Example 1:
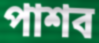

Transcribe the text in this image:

পাশব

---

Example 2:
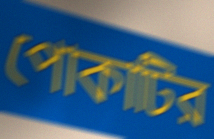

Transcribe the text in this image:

পোকাটির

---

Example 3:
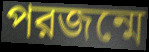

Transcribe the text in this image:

পরজন্মে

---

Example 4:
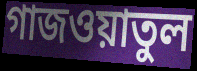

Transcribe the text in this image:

গাজওয়াতুল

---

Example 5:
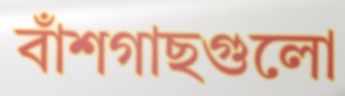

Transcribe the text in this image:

বাঁশগাছগুলো